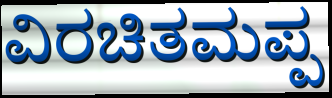
ವಿರಚಿತಮಪ್ಪ